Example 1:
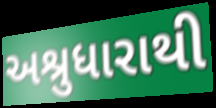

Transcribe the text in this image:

અશ્રુધારાથી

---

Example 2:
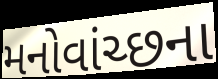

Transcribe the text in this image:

મનોવાંચ્છના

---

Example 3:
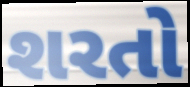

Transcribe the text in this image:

શરતો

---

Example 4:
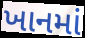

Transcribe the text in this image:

ખાનમાં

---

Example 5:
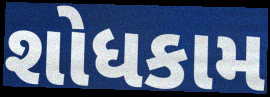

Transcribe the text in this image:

શોધકામ